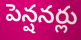
పెన్షనర్లు